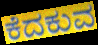
ಕೆದಕುವ